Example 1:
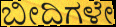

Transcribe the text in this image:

ಬೀದಿಗಳೇ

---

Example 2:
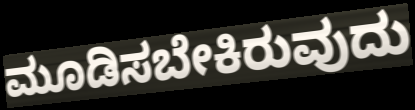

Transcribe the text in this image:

ಮೂಡಿಸಬೇಕಿರುವುದು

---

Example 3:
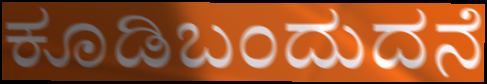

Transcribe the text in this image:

ಕೂಡಿಬಂದುದನೆ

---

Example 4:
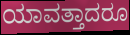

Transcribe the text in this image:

ಯಾವತ್ತಾದರೂ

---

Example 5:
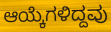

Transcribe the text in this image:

ಆಯ್ಕೆಗಳಿದ್ದವು